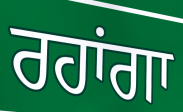
ਰਹਾਂਗਾ